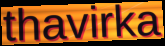
thavirka